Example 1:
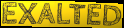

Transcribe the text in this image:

EXALTED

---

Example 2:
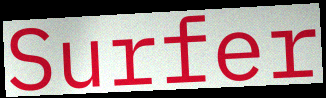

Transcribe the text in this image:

Surfer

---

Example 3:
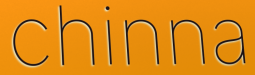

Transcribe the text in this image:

chinna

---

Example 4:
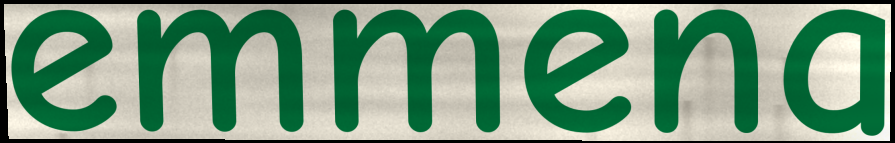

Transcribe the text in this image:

emmena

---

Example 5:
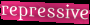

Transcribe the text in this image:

repressive